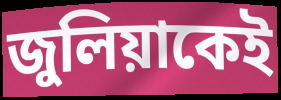
জুলিয়াকেই